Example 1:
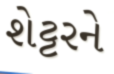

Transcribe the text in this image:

શેટ્ટરને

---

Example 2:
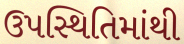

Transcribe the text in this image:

ઉપસ્થિતિમાંથી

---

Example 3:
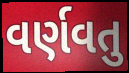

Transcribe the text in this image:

વર્ણવતુ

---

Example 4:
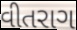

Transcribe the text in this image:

વીતરાગ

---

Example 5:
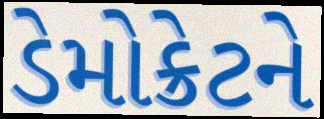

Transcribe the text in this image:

ડેમોક્રેટને